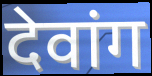
देवांग